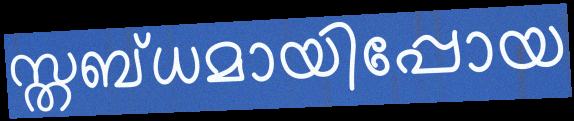
സ്തബ്ധമായിപ്പോയ